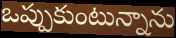
ఒప్పుకుంటున్నాను